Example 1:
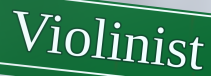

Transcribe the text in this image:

Violinist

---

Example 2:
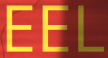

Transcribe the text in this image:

EEL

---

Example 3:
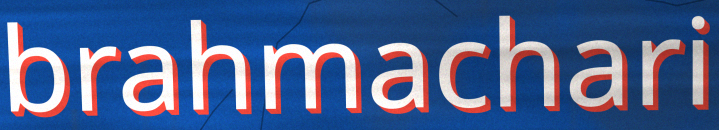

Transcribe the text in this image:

brahmachari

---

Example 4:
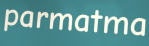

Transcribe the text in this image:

parmatma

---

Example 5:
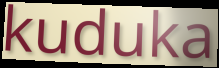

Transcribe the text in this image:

kuduka